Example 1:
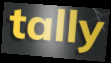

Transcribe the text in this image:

tally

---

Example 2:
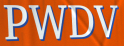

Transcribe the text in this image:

PWDV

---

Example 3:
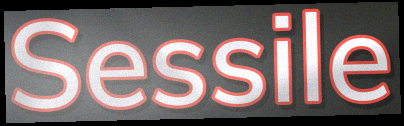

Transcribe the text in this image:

Sessile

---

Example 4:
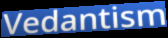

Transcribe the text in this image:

Vedantism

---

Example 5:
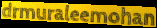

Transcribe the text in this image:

drmuraleemohan